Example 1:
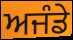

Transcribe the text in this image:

ਅਜੰਡੇ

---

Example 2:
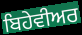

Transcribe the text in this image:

ਬਿਹੇਵੀਅਰ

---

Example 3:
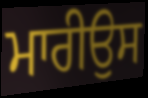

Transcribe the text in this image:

ਮਾਰੀਉਸ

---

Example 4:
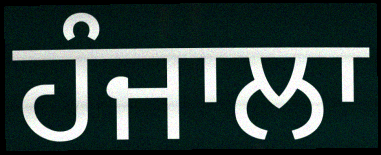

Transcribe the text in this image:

ਹੰਜਾਲਾ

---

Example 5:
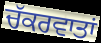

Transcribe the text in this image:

ਚੱਕਰਵਾਤਾਂ